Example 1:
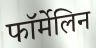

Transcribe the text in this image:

फॉर्मेलिन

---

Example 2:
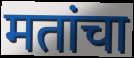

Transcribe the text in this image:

मतांचा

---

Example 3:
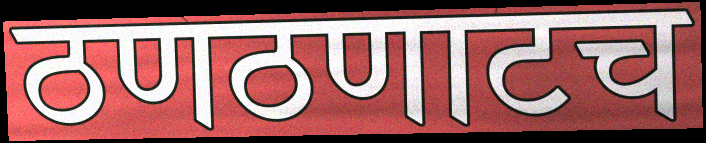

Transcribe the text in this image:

ठणठणाटच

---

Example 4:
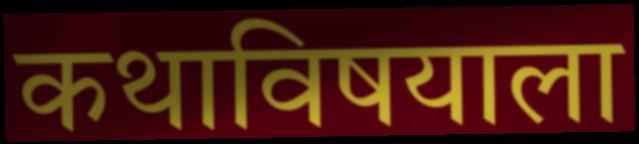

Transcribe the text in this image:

कथाविषयाला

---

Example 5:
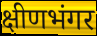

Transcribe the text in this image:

क्षीणभंगर